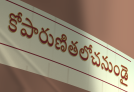
కోపారుణితలోచనుండై